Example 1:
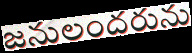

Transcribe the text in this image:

జనులందరును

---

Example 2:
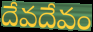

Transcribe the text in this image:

దేవదేవం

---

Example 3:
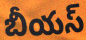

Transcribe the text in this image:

బీయస్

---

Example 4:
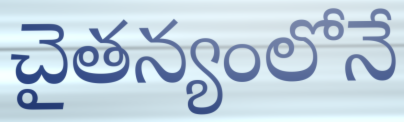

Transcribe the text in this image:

చైతన్యంలోనే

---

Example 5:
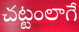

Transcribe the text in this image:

చట్టంలాగే